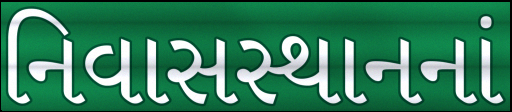
નિવાસસ્થાનનાં